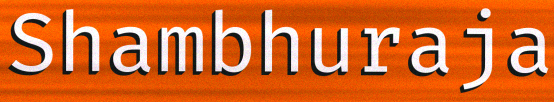
Shambhuraja